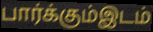
பார்க்கும்இடம்